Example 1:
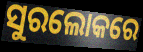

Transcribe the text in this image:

ସୁରଲୋକରେ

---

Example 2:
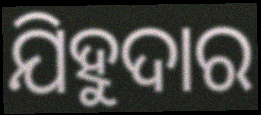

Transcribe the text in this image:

ଯିହୁଦାର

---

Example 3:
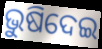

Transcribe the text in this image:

ଭୁଷିଦେଇ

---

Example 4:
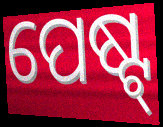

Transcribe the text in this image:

ପେଷ୍ଟ୍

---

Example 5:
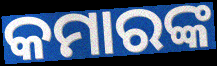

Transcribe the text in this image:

କମାରଙ୍କ